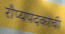
रौप्यपदकाची